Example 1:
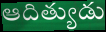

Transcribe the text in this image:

ఆదిత్యుడు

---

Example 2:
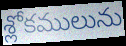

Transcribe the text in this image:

శ్లోకములును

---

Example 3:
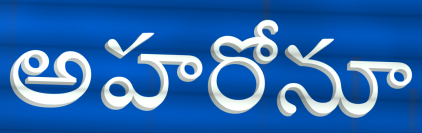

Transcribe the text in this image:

అహరోనూ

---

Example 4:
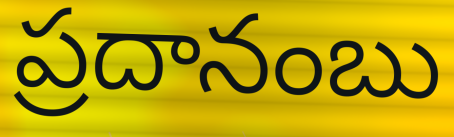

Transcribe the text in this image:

ప్రదానంబు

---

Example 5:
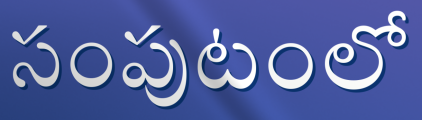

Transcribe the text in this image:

సంపుటంలో